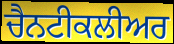
ਚੈਨਟੀਕਲੀਅਰ